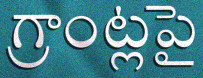
గ్రాంట్లపై